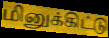
மினுக்கிட்டு